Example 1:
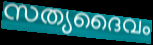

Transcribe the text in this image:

സത്യദൈവം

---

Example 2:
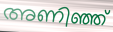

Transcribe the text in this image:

അണിഞ്ഞ്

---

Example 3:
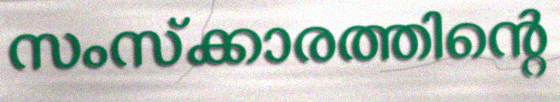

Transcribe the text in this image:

സംസ്‌ക്കാരത്തിന്റെ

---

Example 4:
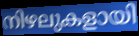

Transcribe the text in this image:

നിഴലുകളായി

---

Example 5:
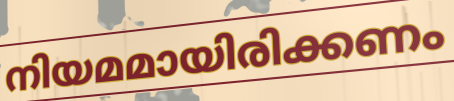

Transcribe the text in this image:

നിയമമായിരിക്കണം